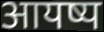
आयष्य